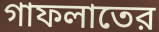
গাফলাতের